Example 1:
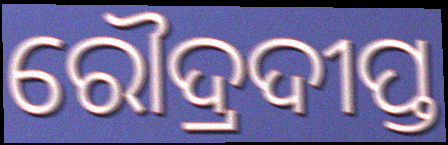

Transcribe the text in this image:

ରୌଦ୍ରଦୀପ୍ତ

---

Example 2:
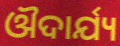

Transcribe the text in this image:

ଔଦାର୍ଯ୍ୟ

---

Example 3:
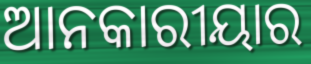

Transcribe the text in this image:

ଆନକାରୀୟାର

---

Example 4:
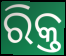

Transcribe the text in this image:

ରିକ୍ତ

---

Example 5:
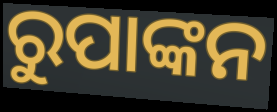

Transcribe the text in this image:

ରୁପାଙ୍କନ